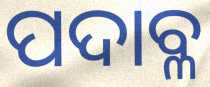
ପଦାବ୍ଳ